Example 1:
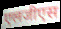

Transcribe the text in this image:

एलजीएस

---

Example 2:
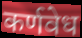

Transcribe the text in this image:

कर्णवेध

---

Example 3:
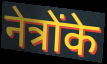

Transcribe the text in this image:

नेत्रोंके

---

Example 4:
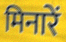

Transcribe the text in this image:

मिनारें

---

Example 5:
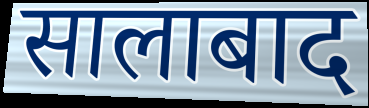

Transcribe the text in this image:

सालाबाद